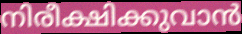
നിരീക്ഷിക്കുവാൻ